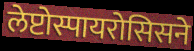
लेप्टोस्पायरोसिसने